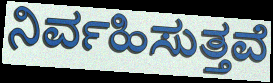
ನಿರ್ವಹಿಸುತ್ತವೆ